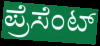
ಪ್ರೆಸೆಂಟ್